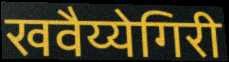
खवैय्येगिरी